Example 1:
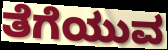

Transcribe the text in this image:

ತೆಗೆಯುವ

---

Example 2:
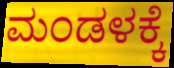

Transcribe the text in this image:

ಮಂಡಳಕ್ಕೆ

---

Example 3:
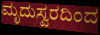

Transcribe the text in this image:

ಮೃದುಸ್ವರದಿಂದ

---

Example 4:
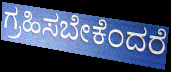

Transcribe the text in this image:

ಗ್ರಹಿಸಬೇಕೆಂದರೆ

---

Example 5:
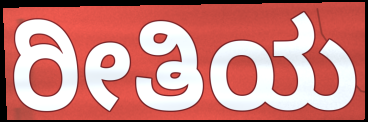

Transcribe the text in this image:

ರೀತಿಯ